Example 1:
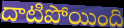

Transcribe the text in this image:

దాటిపోయింది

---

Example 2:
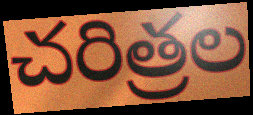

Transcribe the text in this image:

చరిత్రల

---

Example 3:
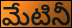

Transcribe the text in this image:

మేటినీ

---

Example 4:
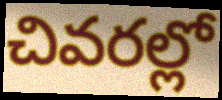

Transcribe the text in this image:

చివరల్లో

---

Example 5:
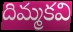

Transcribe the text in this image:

దిమ్మకవి